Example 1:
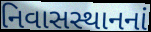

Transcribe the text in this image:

નિવાસસ્થાનનાં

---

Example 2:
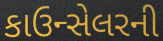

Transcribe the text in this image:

કાઉન્સેલરની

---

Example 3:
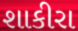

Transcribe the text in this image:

શાકીરા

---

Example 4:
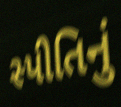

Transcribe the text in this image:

સ્પીતિનું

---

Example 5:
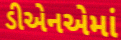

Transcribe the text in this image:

ડીએનએમાં